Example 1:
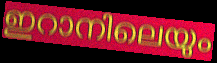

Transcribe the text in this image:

ഇറാനിലെയും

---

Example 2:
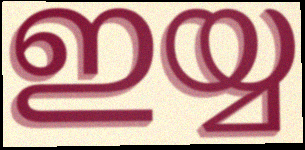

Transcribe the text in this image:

ഇയ്യ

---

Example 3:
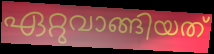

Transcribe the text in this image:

ഏറ്റുവാങ്ങിയത്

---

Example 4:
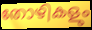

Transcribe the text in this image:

തോഴികളും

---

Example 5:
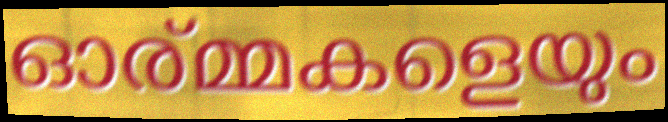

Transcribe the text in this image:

ഓര്മ്മകളെയും